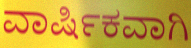
ವಾರ್ಷಿಕವಾಗಿ